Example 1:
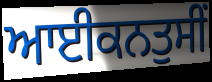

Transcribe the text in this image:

ਆਈਕਨਤੁਸੀਂ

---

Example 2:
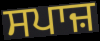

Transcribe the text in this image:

ਸਪਾਜ਼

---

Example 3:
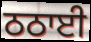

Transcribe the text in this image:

ਠਠਾਈ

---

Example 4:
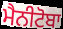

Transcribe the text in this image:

ਮੈਨੀਟੋਬਾ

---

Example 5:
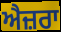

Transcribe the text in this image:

ਐਜ਼ਰਾ